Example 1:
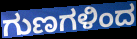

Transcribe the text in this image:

ಗುಣಗಳಿಂದ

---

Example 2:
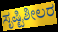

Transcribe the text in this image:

ಸೃಷ್ಟಿಶೀಲರ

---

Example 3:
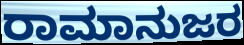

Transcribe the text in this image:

ರಾಮಾನುಜರ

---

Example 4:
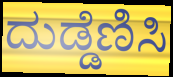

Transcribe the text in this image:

ದುಡ್ಡೆಣಿಸಿ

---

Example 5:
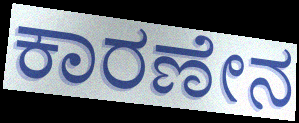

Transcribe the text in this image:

ಕಾರಣೇನ